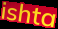
ishta